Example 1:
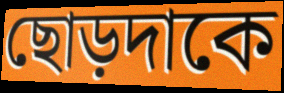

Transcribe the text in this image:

ছোড়দাকে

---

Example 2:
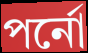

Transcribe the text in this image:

পর্নো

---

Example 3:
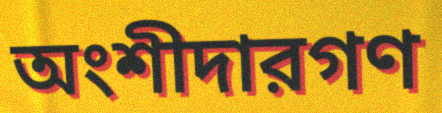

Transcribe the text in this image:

অংশীদারগণ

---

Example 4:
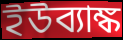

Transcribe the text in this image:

ইউব্যাঙ্ক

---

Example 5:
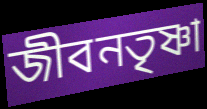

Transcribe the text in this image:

জীবনতৃষ্ণা